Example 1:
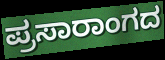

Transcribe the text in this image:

ಪ್ರಸಾರಾಂಗದ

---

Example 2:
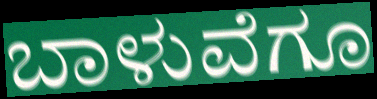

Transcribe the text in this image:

ಬಾಳುವೆಗೂ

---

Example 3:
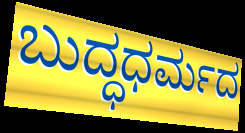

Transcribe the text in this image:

ಬುದ್ಧಧರ್ಮದ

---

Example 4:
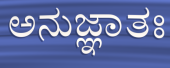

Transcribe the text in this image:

ಅನುಜ್ಞಾತಃ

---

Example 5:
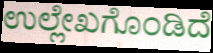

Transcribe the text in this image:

ಉಲ್ಲೇಖಗೊಂಡಿದೆ